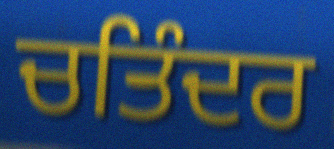
ਚਤਿੰਦਰ